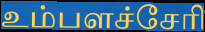
உம்பளச்சேரி